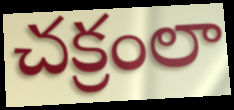
చక్రంలా